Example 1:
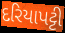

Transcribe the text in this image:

દરિયાપટ્ટી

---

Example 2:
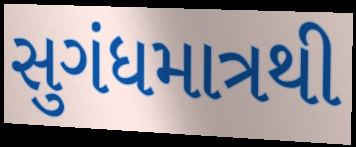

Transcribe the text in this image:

સુગંધમાત્રથી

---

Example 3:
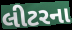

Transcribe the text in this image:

લીટરના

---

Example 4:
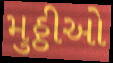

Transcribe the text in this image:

મુઠ્ઠીઓ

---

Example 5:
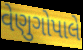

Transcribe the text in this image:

વેણુગોપાલે